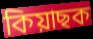
কিয়াছক